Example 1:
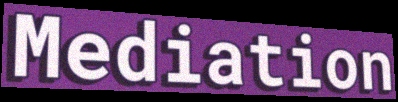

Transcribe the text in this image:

Mediation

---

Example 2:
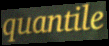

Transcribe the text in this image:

quantile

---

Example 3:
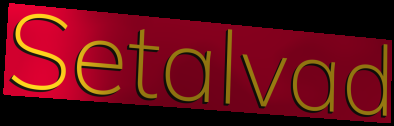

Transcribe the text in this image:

Setalvad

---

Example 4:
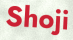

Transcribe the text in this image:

Shoji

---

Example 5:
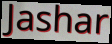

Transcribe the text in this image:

Jashar